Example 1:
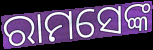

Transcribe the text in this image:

ରାମସେଙ୍କ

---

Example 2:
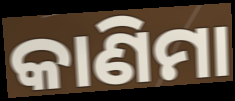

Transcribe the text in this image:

କାଣିମା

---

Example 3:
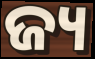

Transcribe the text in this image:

ଜ୍ୟ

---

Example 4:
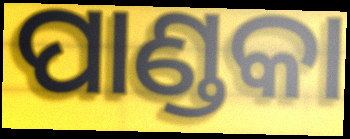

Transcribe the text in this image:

ପାଣ୍ଡକା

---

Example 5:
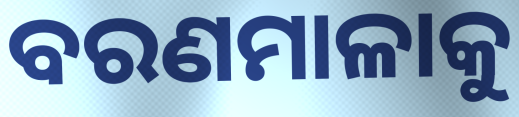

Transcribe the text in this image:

ବରଣମାଳାକୁ